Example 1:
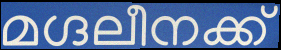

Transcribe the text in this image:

മഗ്ദലീനക്ക്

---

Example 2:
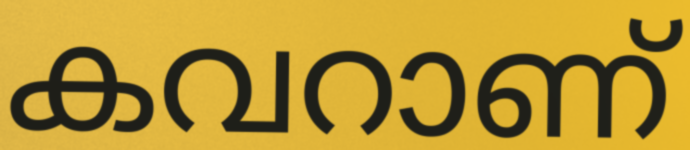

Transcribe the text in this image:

കവറാണ്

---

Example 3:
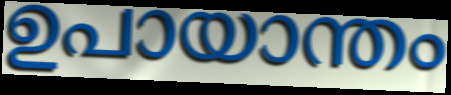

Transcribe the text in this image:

ഉപായാന്തം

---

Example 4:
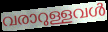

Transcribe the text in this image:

വരാറുള്ളവൾ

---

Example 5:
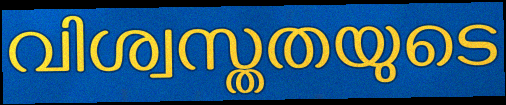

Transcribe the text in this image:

വിശ്വസ്തതയുടെ